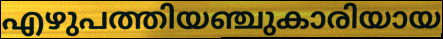
എഴുപത്തിയഞ്ചുകാരിയായ